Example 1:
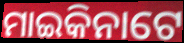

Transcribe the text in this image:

ମାଇକିନାଟେ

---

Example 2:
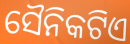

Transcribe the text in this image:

ସୈନିକଟିଏ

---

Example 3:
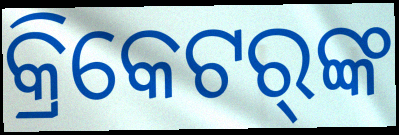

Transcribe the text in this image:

କ୍ରିକେଟର୍‌ଙ୍କ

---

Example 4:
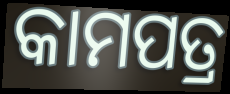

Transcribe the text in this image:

କାମପତ୍ର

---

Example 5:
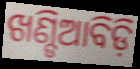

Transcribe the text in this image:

ଖଣ୍ଡିଆବିଡ଼ି